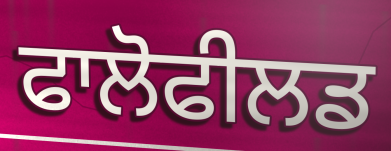
ਫਾਲੋਫੀਲਡ